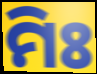
ମିଃ